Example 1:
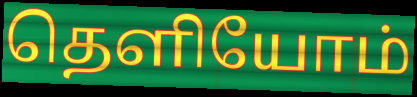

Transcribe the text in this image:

தெளியோம்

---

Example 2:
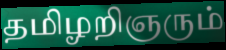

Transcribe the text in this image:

தமிழறிஞரும்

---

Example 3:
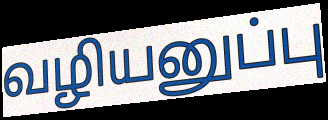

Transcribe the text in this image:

வழியனுப்பு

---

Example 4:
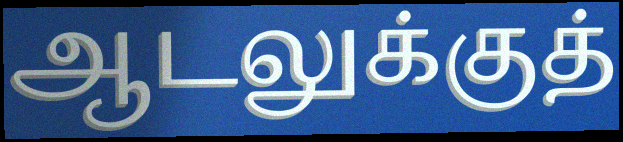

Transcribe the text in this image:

ஆடலுக்குத்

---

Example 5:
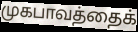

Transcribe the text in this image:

முகபாவத்தைக்